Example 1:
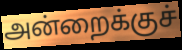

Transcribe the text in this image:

அன்றைக்குச்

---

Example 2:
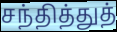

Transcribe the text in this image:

சந்தித்துத்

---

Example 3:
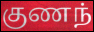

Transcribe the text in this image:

குணந்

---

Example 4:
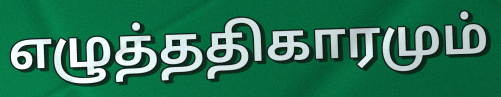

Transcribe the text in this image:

எழுத்ததிகாரமும்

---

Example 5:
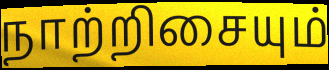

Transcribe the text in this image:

நாற்றிசையும்